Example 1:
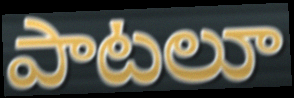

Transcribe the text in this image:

పాటలూ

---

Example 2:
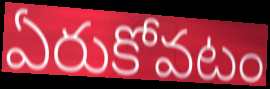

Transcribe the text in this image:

ఏరుకోవటం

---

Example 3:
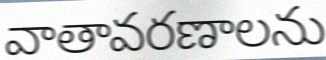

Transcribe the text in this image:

వాతావరణాలను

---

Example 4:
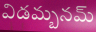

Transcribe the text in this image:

విడమ్బనమ్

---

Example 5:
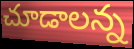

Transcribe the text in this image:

చూడాలన్న